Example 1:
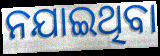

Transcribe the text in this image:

ନଯାଇଥିବା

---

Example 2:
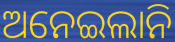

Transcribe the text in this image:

ଅନେଇଲାନି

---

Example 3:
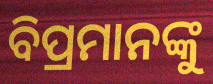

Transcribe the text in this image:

ବିପ୍ରମାନଙ୍କୁ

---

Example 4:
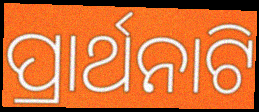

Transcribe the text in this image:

ପ୍ରାର୍ଥନାଟି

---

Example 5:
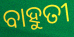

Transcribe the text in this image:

ବାହୁତୀ